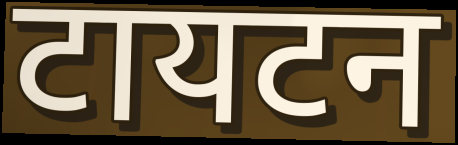
टायटन